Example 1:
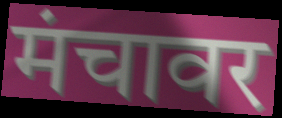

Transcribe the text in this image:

मंचावर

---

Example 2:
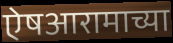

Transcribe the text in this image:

ऐषआरामाच्या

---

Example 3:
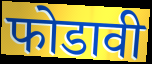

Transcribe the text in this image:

फोडावी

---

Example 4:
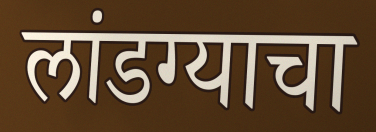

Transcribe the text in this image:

लांडग्याचा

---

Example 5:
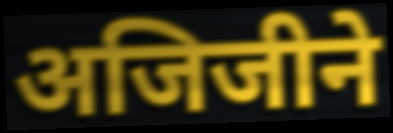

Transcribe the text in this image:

अजिजीने